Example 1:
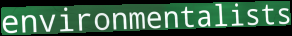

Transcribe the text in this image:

environmentalists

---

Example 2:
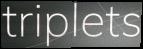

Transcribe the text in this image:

triplets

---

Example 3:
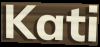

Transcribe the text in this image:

Kati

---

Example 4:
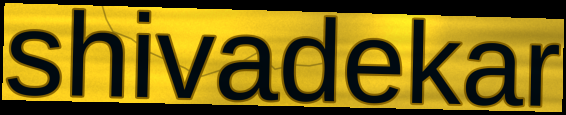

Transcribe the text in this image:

shivadekar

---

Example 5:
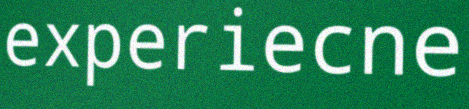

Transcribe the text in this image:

experiecne